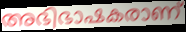
അഭിഭാഷകരാണ്